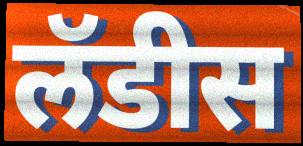
लॅडीस